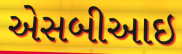
એસબીઆઇ